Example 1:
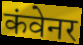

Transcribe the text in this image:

कंवेनर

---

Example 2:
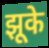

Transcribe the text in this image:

झूके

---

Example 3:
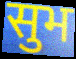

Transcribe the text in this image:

सुभ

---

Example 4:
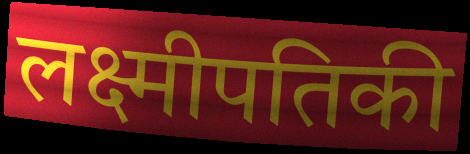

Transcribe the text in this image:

लक्ष्मीपतिकी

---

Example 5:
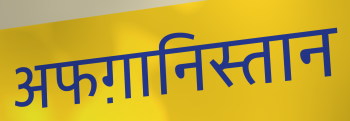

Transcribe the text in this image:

अफग़ानिस्तान